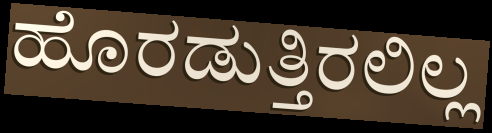
ಹೊರಡುತ್ತಿರಲಿಲ್ಲ